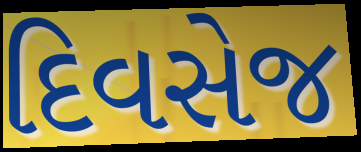
દિવસેજ